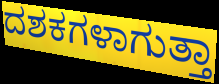
ದಶಕಗಳಾಗುತ್ತಾ